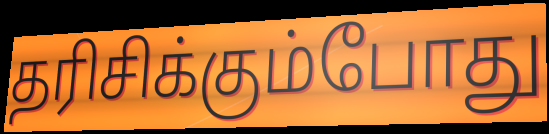
தரிசிக்கும்போது